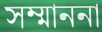
সম্মাননা